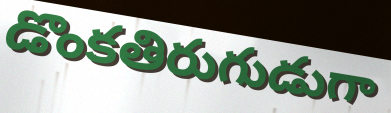
డొంకతిరుగుడుగా